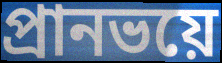
প্রানভয়ে